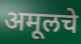
अमूलचे